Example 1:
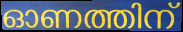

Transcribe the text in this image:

ഓണത്തിന്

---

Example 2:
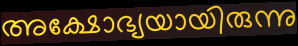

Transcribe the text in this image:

അക്ഷോഭ്യയായിരുന്നു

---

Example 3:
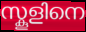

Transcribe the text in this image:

സ്കൂളിനെ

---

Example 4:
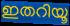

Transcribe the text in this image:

ഇതറിയൂ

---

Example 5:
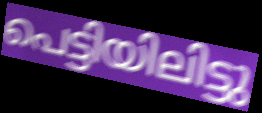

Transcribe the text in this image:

പെട്ടിയിലിട്ടു